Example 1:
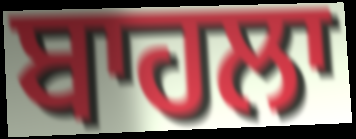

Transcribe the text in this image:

ਬਾਹਲਾ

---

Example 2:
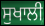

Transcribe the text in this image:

ਸੁਖਾਲੀ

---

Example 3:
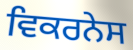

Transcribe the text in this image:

ਵਿਕਰਨੇਸ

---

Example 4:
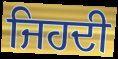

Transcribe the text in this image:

ਜਿਹਦੀ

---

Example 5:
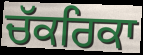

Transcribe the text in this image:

ਚੱਕਰਿਕਾ